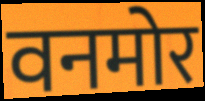
वनमोर